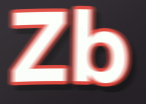
Zb